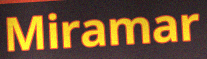
Miramar